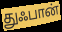
துஃபான்